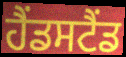
ਹੈਂਡਸਟੈਂਡ